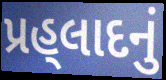
પ્રહ્‌લાદનું